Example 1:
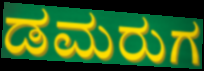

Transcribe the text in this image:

ಡಮರುಗ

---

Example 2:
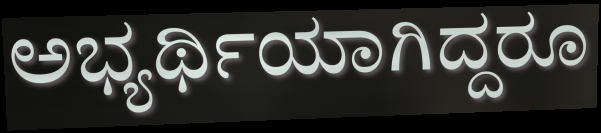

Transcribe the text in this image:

ಅಭ್ಯರ್ಥಿಯಾಗಿದ್ದರೂ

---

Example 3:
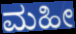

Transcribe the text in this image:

ಮಹೀ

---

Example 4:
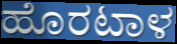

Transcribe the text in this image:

ಹೊರಟಾಳ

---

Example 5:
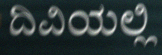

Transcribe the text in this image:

ದಿವಿಯಲ್ಲಿ